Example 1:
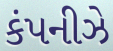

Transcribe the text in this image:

કંપનીઝે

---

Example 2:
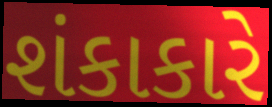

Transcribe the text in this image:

શંકાકારે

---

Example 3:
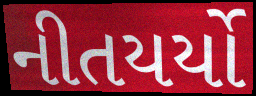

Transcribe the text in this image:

નીતયર્યો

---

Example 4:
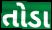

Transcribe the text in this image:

તોડા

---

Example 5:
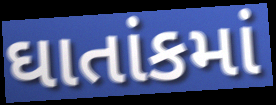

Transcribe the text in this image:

ઘાતાંકમાં